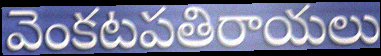
వెంకటపతిరాయలు